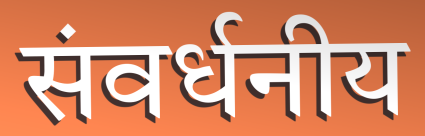
संवर्धनीय